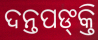
ଦନ୍ତପଙ୍‍କ୍ତି